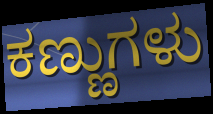
ಕಣ್ಣುಗಳು